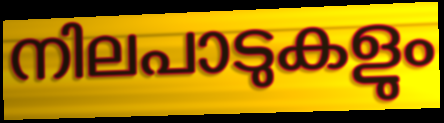
നിലപാടുകളും